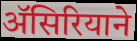
ॲसिरियाने